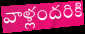
వాళ్లందరికి